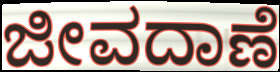
ಜೀವದಾಣೆ